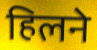
हिलने